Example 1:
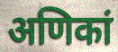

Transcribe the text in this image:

अणिकां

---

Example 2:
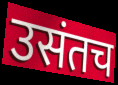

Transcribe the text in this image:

उसंतच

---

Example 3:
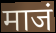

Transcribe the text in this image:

माजं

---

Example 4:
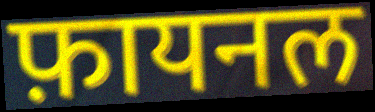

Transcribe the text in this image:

फ़ायनल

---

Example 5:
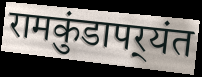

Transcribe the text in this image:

रामकुंडापर्यंत